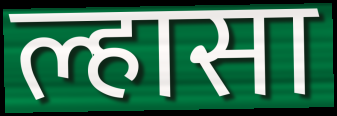
ल्हासा